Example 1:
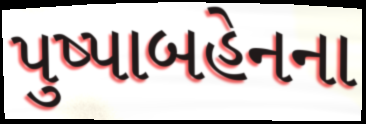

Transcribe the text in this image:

પુષ્પાબહેનના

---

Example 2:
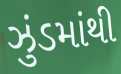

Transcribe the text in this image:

ઝુંડમાંથી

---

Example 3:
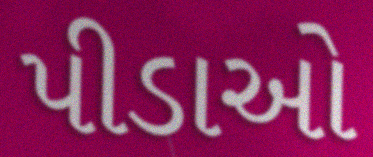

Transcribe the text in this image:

પીડાઓ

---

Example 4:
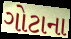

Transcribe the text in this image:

ગોટાના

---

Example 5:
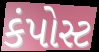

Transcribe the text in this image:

કંપોસ્ટ